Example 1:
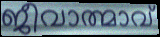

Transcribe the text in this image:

ജീവാത്മാവ്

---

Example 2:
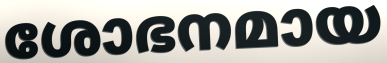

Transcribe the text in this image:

ശോഭനമായ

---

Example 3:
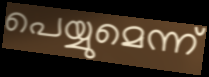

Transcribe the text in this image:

പെയ്യുമെന്ന്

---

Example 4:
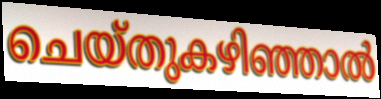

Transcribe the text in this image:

ചെയ്തുകഴിഞ്ഞാൽ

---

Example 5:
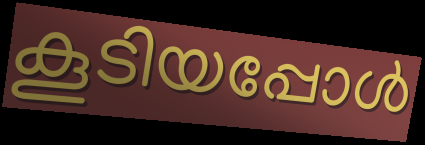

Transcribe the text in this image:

കൂടിയപ്പോൾ